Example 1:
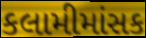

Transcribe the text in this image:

કલામીમાંસક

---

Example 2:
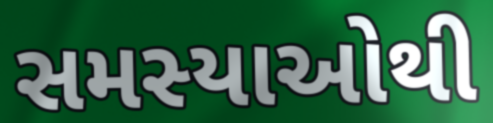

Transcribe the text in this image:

સમસ્યાઓથી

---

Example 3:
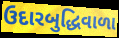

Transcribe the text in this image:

ઉદારબુદ્ધિવાળા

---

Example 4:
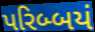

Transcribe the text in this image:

પરિબ્બયં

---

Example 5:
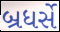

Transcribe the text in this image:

બ્રધર્સે